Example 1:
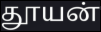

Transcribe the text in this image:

தூயன்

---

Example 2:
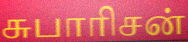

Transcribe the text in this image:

சுபாரிசன்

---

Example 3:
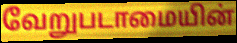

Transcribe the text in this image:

வேறுபடாமையின்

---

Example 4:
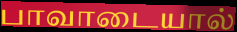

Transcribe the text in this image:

பாவாடையால்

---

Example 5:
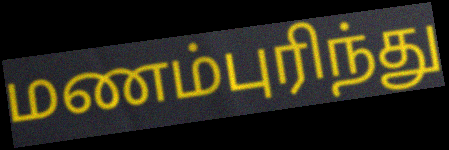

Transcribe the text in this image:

மணம்புரிந்து